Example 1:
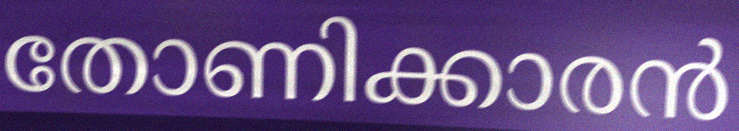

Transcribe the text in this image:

തോണിക്കാരൻ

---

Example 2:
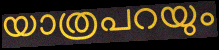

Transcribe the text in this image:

യാത്രപറയും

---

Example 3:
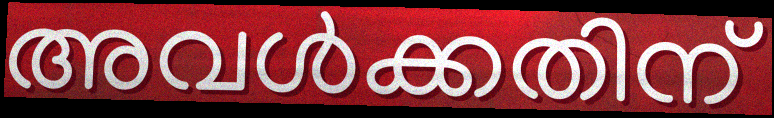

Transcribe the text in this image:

അവൾക്കതിന്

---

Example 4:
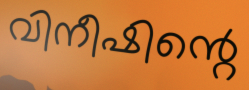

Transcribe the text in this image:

വിനീഷിന്റെ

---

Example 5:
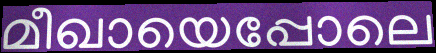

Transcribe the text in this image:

മീഖായെപ്പോലെ